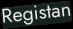
Registan